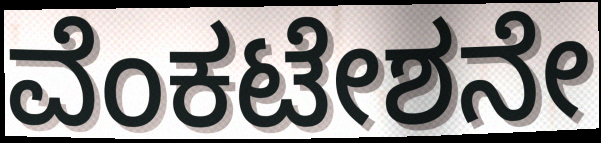
ವೆಂಕಟೇಶನೇ